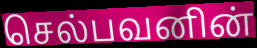
செல்பவனின்